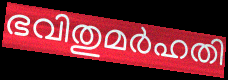
ഭവിതുമർഹതി